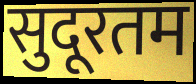
सुदूरतम